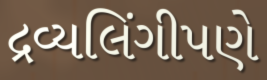
દ્રવ્યલિંગીપણે